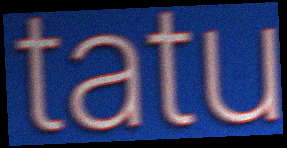
tatu